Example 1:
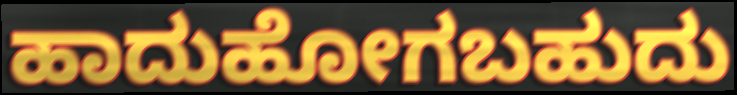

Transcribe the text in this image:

ಹಾದುಹೋಗಬಹುದು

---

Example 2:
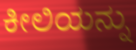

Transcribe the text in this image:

ಕೀಲಿಯನ್ನು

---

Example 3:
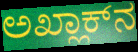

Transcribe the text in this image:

ಅಖ್ಲಾಕ್‍ನ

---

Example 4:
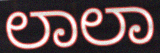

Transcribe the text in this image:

ಲಾಲಾ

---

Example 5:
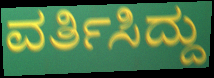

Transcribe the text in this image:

ವರ್ತಿಸಿದ್ದು